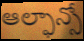
ఆల్ఫాన్సో